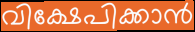
വിക്ഷേപിക്കാൻ